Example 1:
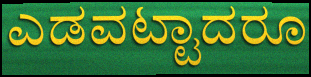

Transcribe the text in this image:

ಎಡವಟ್ಟಾದರೂ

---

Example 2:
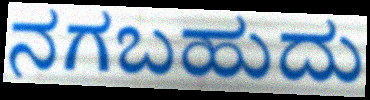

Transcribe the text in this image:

ನಗಬಹುದು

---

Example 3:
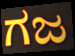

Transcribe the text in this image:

ಗಜ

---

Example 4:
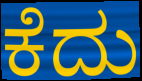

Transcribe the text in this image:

ಕೆದು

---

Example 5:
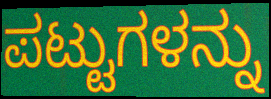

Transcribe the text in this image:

ಪಟ್ಟುಗಳನ್ನು